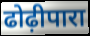
ढोढ़ीपारा